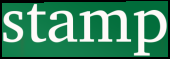
stamp